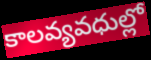
కాలవ్యవధుల్లో